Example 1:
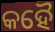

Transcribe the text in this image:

କହୈ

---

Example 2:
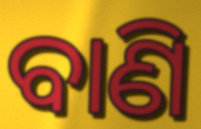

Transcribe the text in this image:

ବାଣି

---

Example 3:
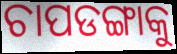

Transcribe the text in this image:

ଚାପଡଙ୍ଗାକୁ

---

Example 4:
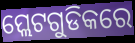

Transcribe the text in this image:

ପ୍ଲେଟଗୁଡିକରେ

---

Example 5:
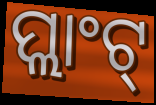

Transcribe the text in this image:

ପ୍ଲାଂଟ୍